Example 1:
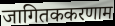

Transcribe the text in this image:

जागितककरणाम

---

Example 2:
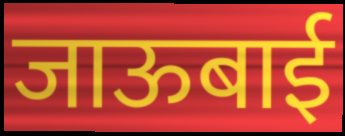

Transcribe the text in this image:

जाऊबाई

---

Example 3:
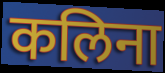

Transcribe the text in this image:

कलिना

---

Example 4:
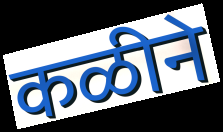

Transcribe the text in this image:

कळीने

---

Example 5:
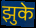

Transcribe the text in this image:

झुके